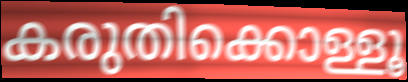
കരുതിക്കൊള്ളൂ